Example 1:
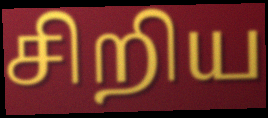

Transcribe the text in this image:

சிறிய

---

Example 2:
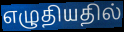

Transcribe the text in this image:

எழுதியதில்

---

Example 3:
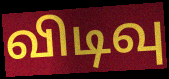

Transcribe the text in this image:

விடிவு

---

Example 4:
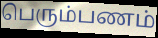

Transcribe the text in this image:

பெரும்பணம்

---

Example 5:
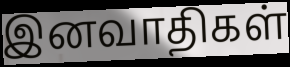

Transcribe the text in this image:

இனவாதிகள்